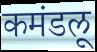
कमंडलू